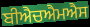
ਬੀਐਚਐਮਐਸ